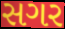
સગર